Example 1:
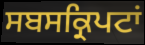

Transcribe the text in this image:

ਸਬਸਕ੍ਰਿਪਟਾਂ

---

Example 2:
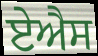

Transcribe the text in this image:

ਏਐਸ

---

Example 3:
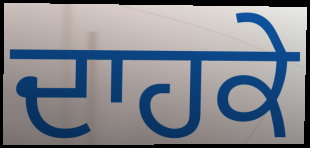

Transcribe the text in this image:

ਦਾਹਕੇ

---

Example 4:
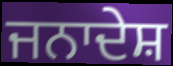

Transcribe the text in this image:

ਜਨਾਦੇਸ਼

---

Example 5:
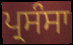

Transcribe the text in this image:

ਪ੍ਰਸੰਸਾ